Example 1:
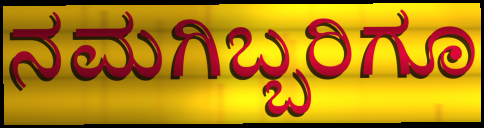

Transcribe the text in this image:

ನಮಗಿಬ್ಬರಿಗೂ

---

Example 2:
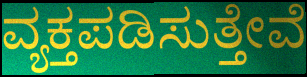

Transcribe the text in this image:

ವ್ಯಕ್ತಪಡಿಸುತ್ತೇವೆ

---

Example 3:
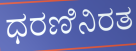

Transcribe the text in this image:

ಧರಣಿನಿರತ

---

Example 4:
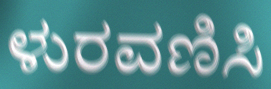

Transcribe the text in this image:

ಳುರವಣಿಸಿ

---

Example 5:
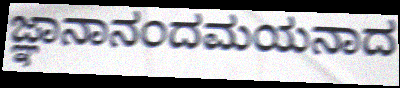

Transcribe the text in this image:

ಜ್ಞಾನಾನಂದಮಯನಾದ